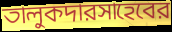
তালুকদারসাহেবের